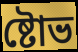
ষ্টোভ